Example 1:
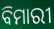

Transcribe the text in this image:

ବିମାରୀ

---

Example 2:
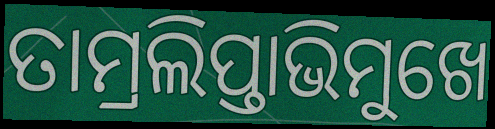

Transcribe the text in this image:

ତାମ୍ରଲିପ୍ତାଭିମୁଖେ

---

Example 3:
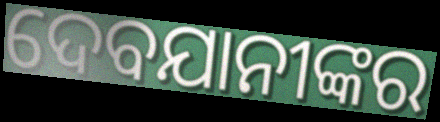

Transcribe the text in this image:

ଦେବଯାନୀଙ୍କର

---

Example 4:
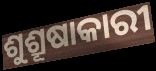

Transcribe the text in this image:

ଶୁଶ୍ରୂଷାକାରୀ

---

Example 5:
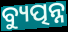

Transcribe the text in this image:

ବ୍ୟୁତ୍ପନ୍ନ